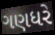
ગણધરે